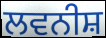
ਲਵਨੀਸ਼